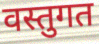
वस्तुगत